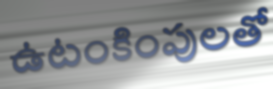
ఉటంకింపులతో